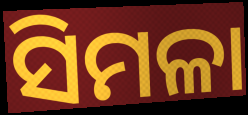
ସିମଳା